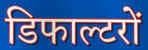
डिफाल्टरों